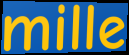
mille